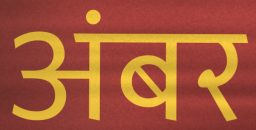
अंबर